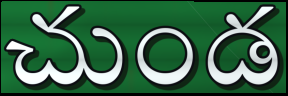
చుండ